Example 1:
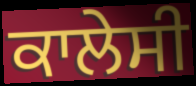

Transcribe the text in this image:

ਕਾਲੇਸੀ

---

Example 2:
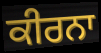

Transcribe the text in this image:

ਕੀਰਨਾ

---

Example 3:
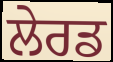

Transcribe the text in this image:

ਲੇਰਡ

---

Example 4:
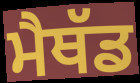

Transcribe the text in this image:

ਮੈਥੱਡ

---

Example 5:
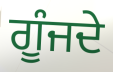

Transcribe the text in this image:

ਗੂੰਜਦੇ